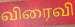
விரைவி